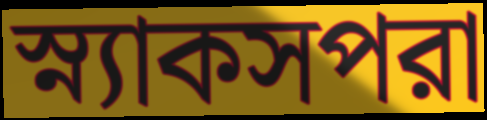
স্ন্যাকসপরা